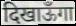
दिखाऊँगा